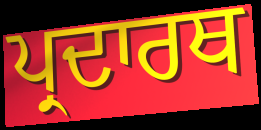
ਪ੍ਰਦਾਰਥ